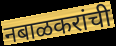
नबाळकरांची